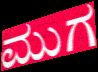
ಮುಗ